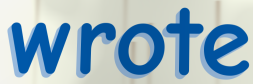
wrote